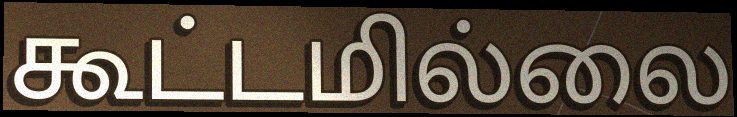
கூட்டமில்லை